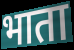
भाता